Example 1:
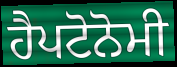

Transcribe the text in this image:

ਹੈਪਟੋਨੋਮੀ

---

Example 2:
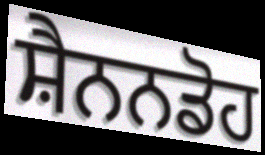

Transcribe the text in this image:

ਸ਼ੈਨਨਡੋਹ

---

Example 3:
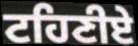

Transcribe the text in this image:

ਟਹਿਣੀਏ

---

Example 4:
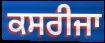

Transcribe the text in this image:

ਕਸਰੀਜਾ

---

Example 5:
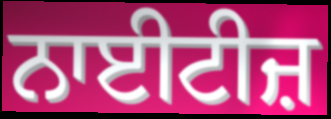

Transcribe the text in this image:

ਨਾਈਟੀਜ਼